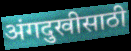
अंगदुखीसाठी